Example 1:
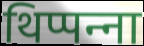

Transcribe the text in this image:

थिप्पन्ना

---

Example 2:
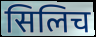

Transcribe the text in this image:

सिलिच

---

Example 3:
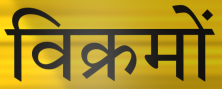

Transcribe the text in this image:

विक्रमों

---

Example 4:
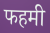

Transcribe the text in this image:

फहमी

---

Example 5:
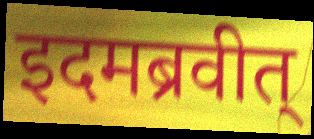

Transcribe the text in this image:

इदमब्रवीत्